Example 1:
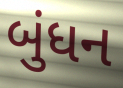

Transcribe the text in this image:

બુંધન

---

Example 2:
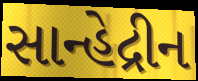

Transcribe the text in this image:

સાન્હેદ્રીન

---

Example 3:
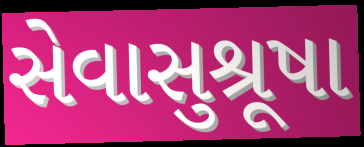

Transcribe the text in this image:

સેવાસુશ્રૂષા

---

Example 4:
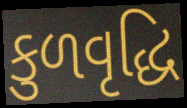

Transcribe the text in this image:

કુળવૃદ્ધિ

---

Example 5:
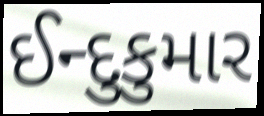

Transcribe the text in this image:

ઈન્દુકુમાર